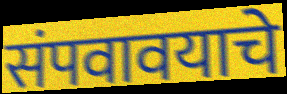
संपवावयाचे